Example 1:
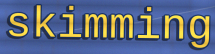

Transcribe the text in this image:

skimming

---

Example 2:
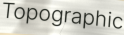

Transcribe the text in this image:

Topographic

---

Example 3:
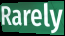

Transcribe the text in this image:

Rarely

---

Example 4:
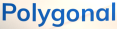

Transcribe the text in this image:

Polygonal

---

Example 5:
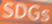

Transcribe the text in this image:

SDGs